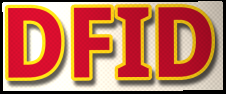
DFID